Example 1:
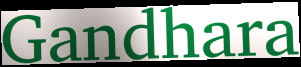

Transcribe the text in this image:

Gandhara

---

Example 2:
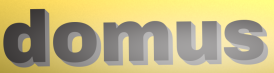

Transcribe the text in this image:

domus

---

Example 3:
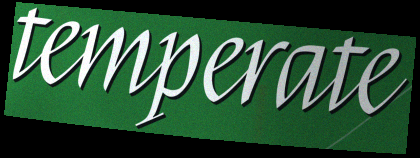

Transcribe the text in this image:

temperate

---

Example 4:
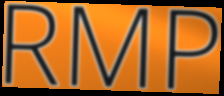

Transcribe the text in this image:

RMP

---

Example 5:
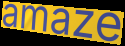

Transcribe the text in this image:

amaze